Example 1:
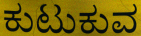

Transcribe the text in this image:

ಕುಟುಕುವ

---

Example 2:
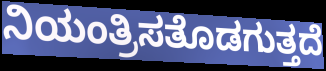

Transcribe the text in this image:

ನಿಯಂತ್ರಿಸತೊಡಗುತ್ತದೆ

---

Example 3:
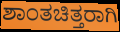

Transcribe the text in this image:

ಶಾಂತಚಿತ್ತರಾಗಿ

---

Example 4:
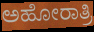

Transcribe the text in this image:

ಅಹೋರಾತ್ರಿ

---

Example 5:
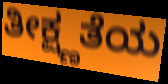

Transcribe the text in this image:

ತೀಕ್ಷ್ಣತೆಯ